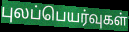
புலப்பெயர்வுகள்